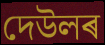
দেউলৰ